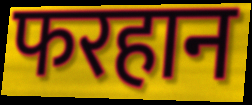
फरहान